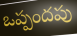
ఒప్పందపు